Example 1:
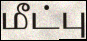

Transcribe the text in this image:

மீட்பு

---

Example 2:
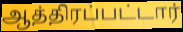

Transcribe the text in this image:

ஆத்திரப்பட்டார்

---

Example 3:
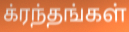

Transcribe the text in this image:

க்ரந்தங்கள்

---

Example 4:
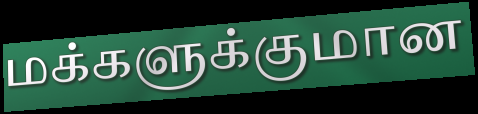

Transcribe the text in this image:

மக்களுக்குமான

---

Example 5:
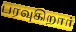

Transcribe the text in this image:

பரவுகிறார்